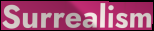
Surrealism